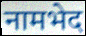
नामभेद